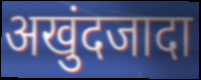
अखुंदजादा